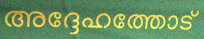
അദ്ദേഹത്തോട്